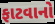
ફાટવાનો